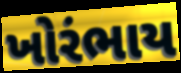
ખોરંભાય